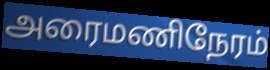
அரைமணிநேரம்